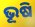
ଭୂଷି